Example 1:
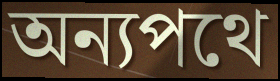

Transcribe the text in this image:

অন্যপথে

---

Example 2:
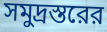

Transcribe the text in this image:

সমুদ্রস্তরের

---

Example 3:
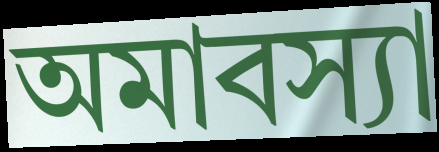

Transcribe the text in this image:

অমাবস্যা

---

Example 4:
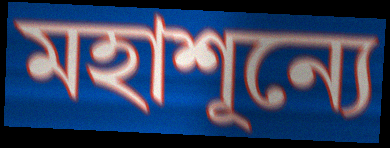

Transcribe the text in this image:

মহাশূন্যে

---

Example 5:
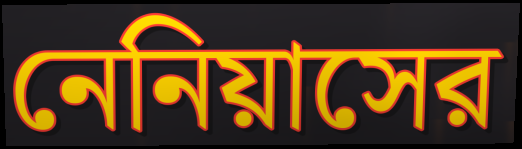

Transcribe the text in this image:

নেনিয়াসের